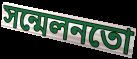
সন্মেলনতো